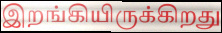
இறங்கியிருக்கிறது